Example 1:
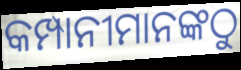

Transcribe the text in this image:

କମ୍ପାନୀମାନଙ୍କଠୁ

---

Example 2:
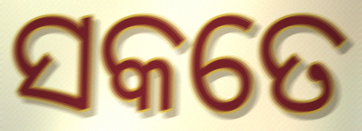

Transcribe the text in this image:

ସକତେ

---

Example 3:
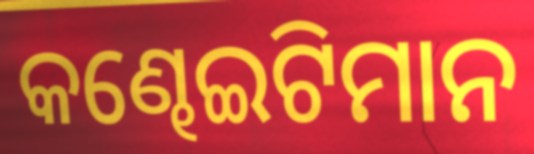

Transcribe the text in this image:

କଣ୍ଢେଇଟିମାନ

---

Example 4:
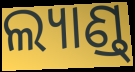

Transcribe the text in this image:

ଲ୍ୟାଣ୍ଡ୍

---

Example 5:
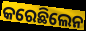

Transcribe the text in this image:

କରେଛିଲେନ